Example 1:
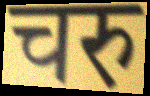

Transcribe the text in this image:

चरु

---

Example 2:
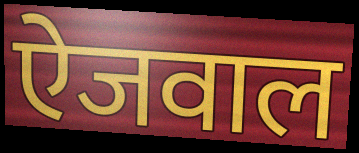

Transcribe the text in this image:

ऐजवाल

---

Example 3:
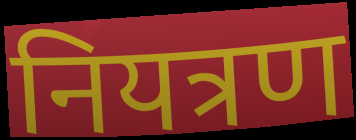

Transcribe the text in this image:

नियत्रण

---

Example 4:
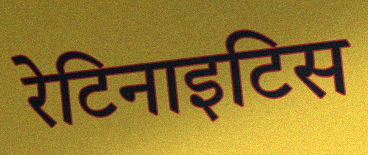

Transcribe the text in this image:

रेटिनाइटिस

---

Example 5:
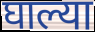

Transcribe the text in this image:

घाल्या